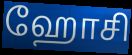
ஹோசி